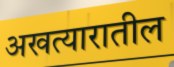
अखत्यारातील